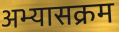
अभ्यासक्रम